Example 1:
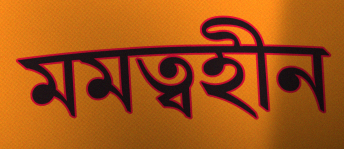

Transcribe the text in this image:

মমত্বহীন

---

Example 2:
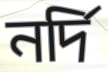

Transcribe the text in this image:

নর্দি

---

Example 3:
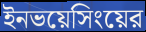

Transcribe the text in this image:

ইনভয়েসিংয়ের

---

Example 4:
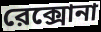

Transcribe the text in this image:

রেক্সোনা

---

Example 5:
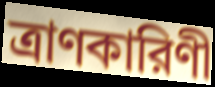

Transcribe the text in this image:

ত্রাণকারিণী